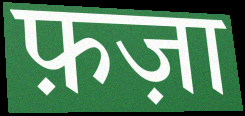
फ़ज़ा